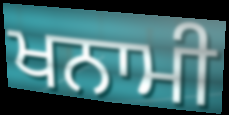
ਖਨਾਮੀ